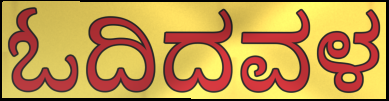
ಓದಿದವಳ